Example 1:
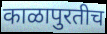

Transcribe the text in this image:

काळापुरतीच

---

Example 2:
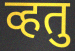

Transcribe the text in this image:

व्हतु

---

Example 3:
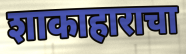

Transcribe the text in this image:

शाकाहाराचा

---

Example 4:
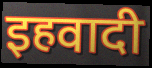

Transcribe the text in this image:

इहवादी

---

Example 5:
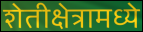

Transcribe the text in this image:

शेतीक्षेत्रामध्ये